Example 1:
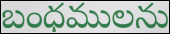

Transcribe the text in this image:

బంధములను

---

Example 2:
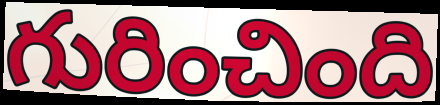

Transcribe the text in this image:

గురించింది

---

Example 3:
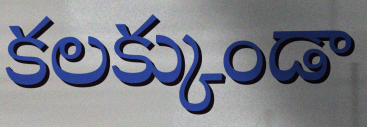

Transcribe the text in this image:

కలక్కుండా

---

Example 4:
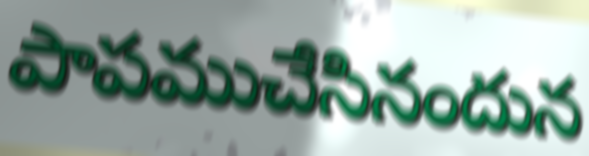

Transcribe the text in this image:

పాపముచేసినందున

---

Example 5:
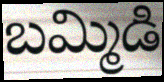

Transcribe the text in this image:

బమ్మిడి